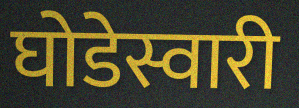
घोडेस्वारी